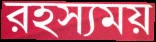
রহস্যময়